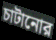
চাটানোর